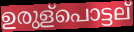
ഉരുള്പൊട്ടല്